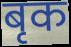
बृक